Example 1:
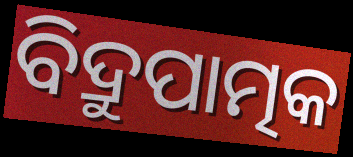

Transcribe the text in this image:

ବିଦ୍ରୁପାତ୍ମକ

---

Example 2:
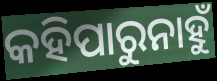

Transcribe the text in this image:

କହିପାରୁନାହୁଁ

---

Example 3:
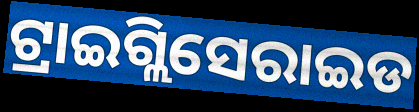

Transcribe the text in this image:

ଟ୍ରାଇଗ୍ଲିସେରାଇଡ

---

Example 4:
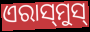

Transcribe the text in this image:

ଏରାସ୍‍ମୁସ୍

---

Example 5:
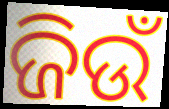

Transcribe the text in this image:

ଜିଉଁ